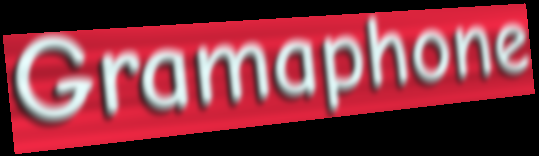
Gramaphone